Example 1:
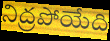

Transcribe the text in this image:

నిద్రపోయేది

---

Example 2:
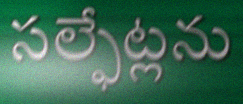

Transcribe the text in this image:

సల్ఫేట్లను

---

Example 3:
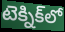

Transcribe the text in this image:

టెక్నిక్‌లో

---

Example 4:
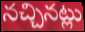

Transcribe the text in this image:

నచ్చినట్లు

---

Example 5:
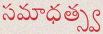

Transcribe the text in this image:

సమాధత్స్వ